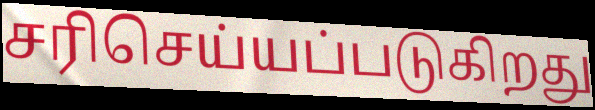
சரிசெய்யப்படுகிறது